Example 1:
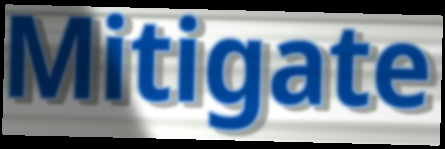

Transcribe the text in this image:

Mitigate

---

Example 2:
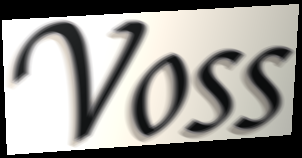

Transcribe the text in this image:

Voss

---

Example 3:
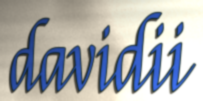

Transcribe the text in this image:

davidii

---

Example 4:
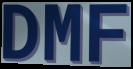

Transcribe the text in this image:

DMF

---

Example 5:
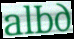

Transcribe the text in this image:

albd